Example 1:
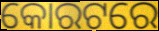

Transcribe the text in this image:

କୋରଟରେ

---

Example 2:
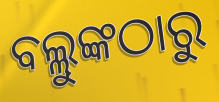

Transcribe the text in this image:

ବଲ୍ଲୁଙ୍କଠାରୁ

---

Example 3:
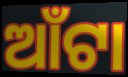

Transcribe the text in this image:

ଆଁଟା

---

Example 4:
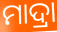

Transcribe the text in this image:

ମାଦ୍ରା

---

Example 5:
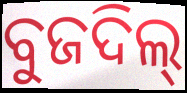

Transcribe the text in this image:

ବୁଜଦିଲ୍